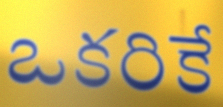
ఒకరికే